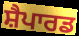
ਸ਼ੈਪਾਰਡ